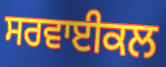
ਸਰਵਾਈਕਲ